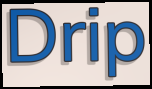
Drip